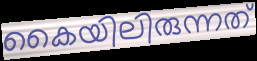
കൈയിലിരുന്നത്